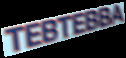
TEBTEBBA